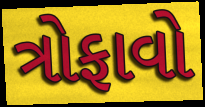
ત્રોફાવો